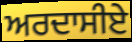
ਅਰਦਾਸੀਏ